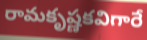
రామకృష్ణకవిగారే